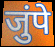
जुंपे